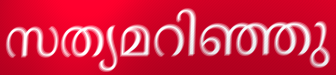
സത്യമറിഞ്ഞു